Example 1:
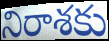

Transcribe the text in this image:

నిరాశకు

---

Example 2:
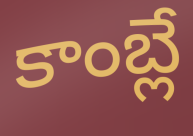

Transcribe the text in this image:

కాంబ్లే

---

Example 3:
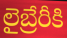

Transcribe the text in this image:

లైబ్రేరీకి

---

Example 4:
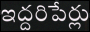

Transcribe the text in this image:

ఇద్దరిపేర్లు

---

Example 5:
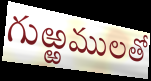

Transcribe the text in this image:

గుఱ్ఱములతో